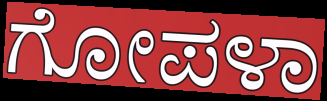
ಗೋಪಳಾ